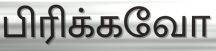
பிரிக்கவோ